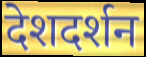
देशदर्शन